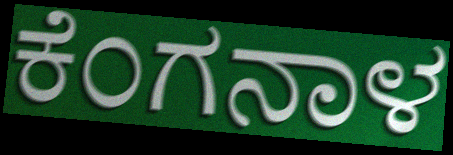
ಕೆಂಗನಾಳ